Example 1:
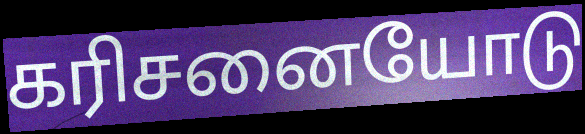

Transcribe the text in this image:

கரிசனையோடு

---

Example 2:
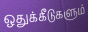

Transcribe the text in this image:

ஒதுக்கீடுகளும்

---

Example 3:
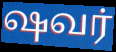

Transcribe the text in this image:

ஷவர்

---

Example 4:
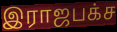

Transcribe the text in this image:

இராஜபக்ச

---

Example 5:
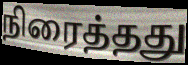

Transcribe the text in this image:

நிரைத்தது